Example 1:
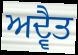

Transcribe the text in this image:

ਅਦ੍ਵੈਤ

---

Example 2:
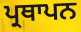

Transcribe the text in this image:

ਪ੍ਰਥਾਪਨ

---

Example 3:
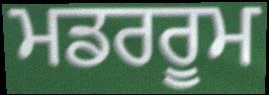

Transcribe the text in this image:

ਮਡਰਰੂਮ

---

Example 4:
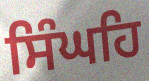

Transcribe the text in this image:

ਸਿੰਘਹਿ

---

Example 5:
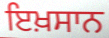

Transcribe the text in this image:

ਇਖ਼ਸਾਨ